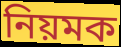
নিয়মক